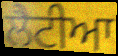
ਲੈਟੀਆ